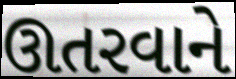
ઊતરવાને